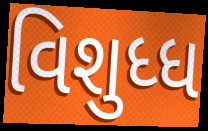
વિશુધ્ધ